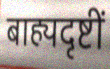
बाह्यदृष्टीं